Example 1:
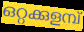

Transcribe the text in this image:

ഒറ്റക്കുളമ്പ്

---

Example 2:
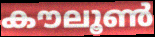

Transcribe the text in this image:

കൗലൂൺ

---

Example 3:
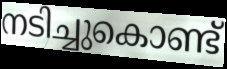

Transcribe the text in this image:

നടിച്ചുകൊണ്ട്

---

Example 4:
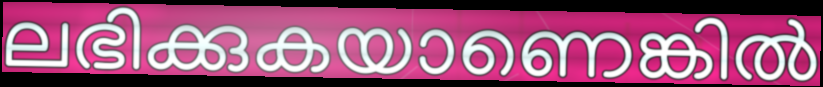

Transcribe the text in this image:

ലഭിക്കുകയാണെങ്കിൽ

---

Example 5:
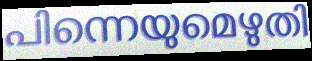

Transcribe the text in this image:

പിന്നെയുമെഴുതി